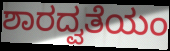
ಶಾರದ್ವತೆಯಂ